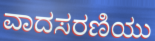
ವಾದಸರಣಿಯು